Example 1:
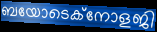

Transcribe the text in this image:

ബയോടെക്നോളജി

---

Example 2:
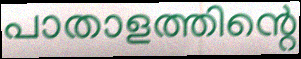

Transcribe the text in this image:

പാതാളത്തിന്റെ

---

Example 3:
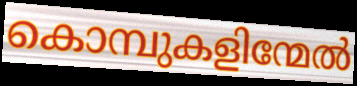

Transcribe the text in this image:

കൊമ്പുകളിന്മേൽ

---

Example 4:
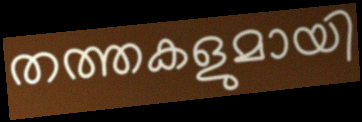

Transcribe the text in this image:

തത്തകളുമായി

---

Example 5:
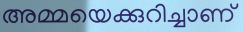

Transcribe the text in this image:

അമ്മയെക്കുറിച്ചാണ്